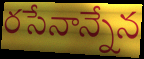
రసేనాన్నేన